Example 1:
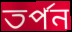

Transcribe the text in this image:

তর্পন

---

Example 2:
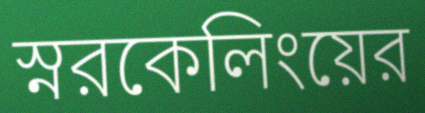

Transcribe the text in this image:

স্নরকেলিংয়ের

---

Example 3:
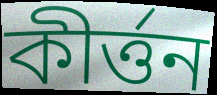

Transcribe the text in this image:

কীর্ত্তন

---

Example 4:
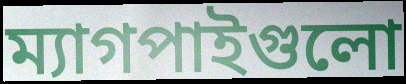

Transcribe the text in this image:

ম্যাগপাইগুলো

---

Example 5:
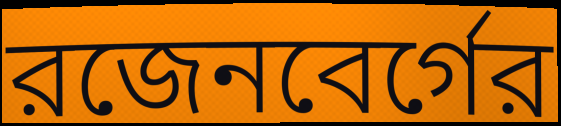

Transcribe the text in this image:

রজেনবের্গের